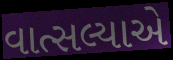
વાત્સલ્યાએ